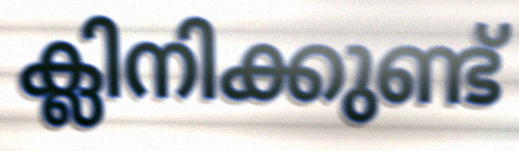
ക്ലിനിക്കുണ്ട്